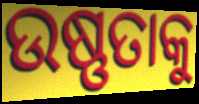
ଉଷ୍ଣତାକୁ